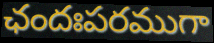
ఛందఃపరముగా